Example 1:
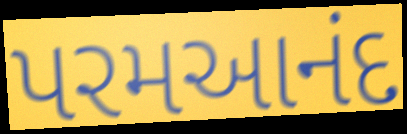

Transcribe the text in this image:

પરમઆનંદ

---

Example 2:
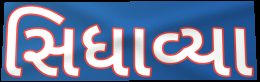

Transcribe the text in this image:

સિધાવ્યા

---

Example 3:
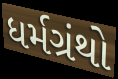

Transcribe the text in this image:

ધર્મગ્રંથો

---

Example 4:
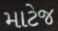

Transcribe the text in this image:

માટેજ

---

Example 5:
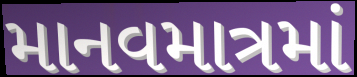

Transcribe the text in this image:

માનવમાત્રમાં